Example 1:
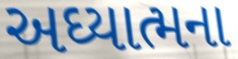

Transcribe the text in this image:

અઘ્યાત્મના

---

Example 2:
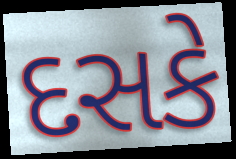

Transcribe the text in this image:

દસકે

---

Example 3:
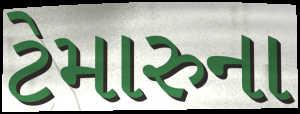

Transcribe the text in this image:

ટેમારુના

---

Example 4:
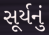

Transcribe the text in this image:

સૂર્યનું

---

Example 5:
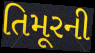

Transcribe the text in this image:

તિમૂરની